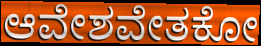
ಆವೇಶವೇತಕೋ